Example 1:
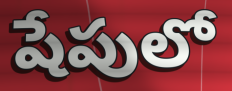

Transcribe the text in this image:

షేపులో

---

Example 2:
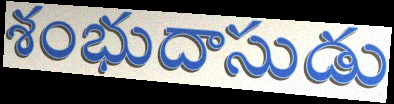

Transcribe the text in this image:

శంభుదాసుడు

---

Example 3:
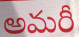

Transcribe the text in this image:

అమరీ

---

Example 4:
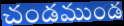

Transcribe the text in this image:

చండముండ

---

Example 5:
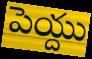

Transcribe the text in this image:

పెయ్దు